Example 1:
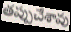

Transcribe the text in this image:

తప్పుచేశావు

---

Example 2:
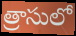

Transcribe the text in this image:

త్రాసులో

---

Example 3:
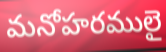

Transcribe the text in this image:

మనోహరములై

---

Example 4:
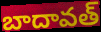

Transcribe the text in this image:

బాదావత్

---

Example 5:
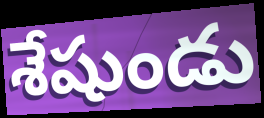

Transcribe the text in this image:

శేషుండు